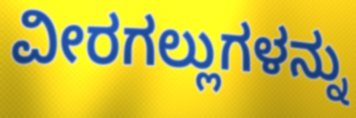
ವೀರಗಲ್ಲುಗಳನ್ನು